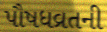
પૌષધવ્રતની